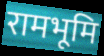
रामभूमि